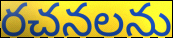
రచనలను